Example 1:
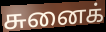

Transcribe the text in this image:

சுனைக்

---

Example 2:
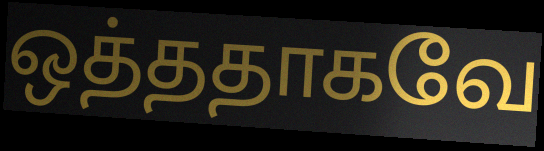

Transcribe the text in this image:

ஒத்ததாகவே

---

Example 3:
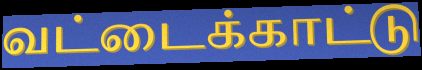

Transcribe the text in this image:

வட்டைக்காட்டு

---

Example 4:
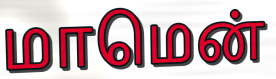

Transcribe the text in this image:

மாமென்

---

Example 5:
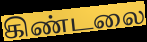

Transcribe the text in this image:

கிண்டலை